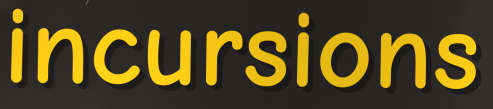
incursions